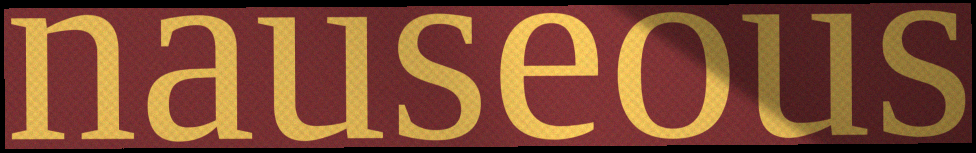
nauseous